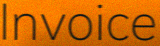
Invoice